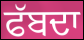
ਫੱਬਦਾ